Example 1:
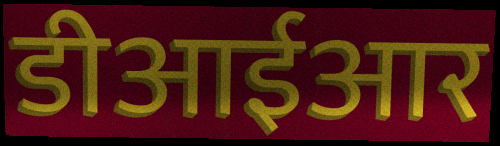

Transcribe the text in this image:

डीआईआर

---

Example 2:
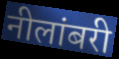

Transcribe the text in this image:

नीलांबरी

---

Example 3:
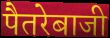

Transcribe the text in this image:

पैतरेबाजी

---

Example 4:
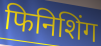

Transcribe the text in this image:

फिनिशिंग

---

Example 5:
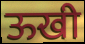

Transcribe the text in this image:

ऊखी